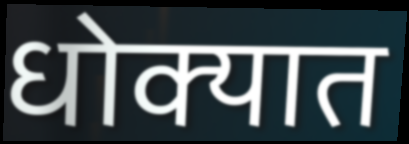
धोक्यात